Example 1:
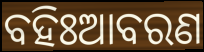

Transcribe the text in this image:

ବହିଃଆବରଣ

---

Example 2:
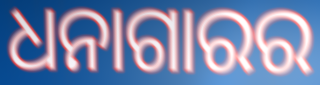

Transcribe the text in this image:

ଧନାଗାରର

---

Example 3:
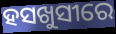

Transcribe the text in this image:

ହସଖୁସୀରେ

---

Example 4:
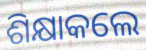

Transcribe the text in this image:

ଶିକ୍ଷାକଲେ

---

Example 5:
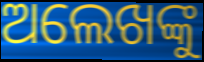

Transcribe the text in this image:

ଅଲେଖଙ୍କୁ